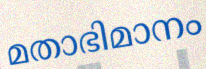
മതാഭിമാനം